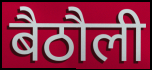
बैठौली